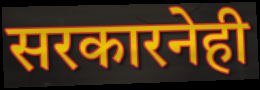
सरकारनेही